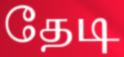
தேடி